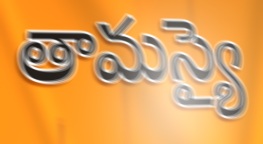
తామస్యై